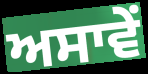
ਅਸਾਵੇਂ